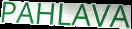
PAHLAVA